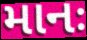
માનઃ